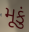
મૂકું